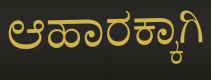
ಆಹಾರಕ್ಕಾಗಿ